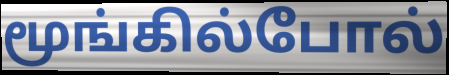
மூங்கில்போல்